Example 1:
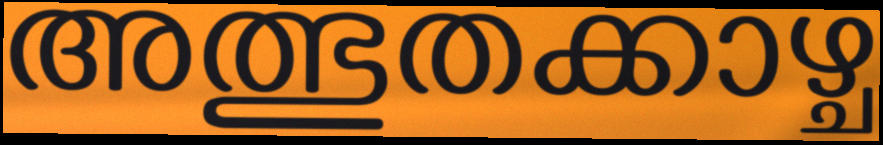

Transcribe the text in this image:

അത്ഭുതക്കാഴ്ച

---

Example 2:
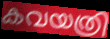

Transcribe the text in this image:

കവയത്രി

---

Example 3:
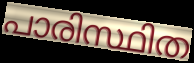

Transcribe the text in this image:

പാരിസ്ഥിത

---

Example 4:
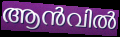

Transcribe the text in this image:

ആൻവിൽ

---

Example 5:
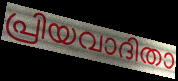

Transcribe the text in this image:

പ്രിയവാദിതാ